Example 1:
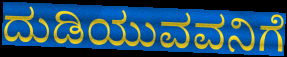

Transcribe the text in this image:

ದುಡಿಯುವವನಿಗೆ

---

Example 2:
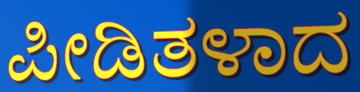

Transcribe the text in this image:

ಪೀಡಿತಳಾದ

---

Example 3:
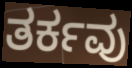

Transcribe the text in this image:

ತರ್ಕವು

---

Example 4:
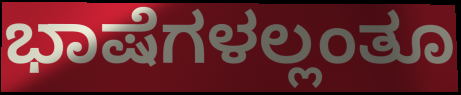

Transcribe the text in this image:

ಭಾಷೆಗಳಲ್ಲಂತೂ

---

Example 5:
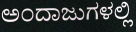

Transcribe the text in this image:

ಅಂದಾಜುಗಳಲ್ಲಿ